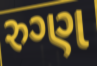
રુગ્ણ